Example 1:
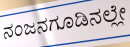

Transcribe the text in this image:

ನಂಜನಗೂಡಿನಲ್ಲೇ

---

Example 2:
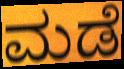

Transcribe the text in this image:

ಮಡೆ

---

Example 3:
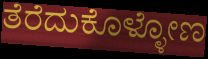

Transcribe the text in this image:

ತೆರೆದುಕೊಳ್ಳೋಣ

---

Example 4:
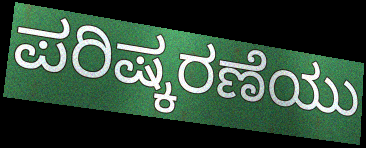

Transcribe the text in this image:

ಪರಿಷ್ಕರಣೆಯು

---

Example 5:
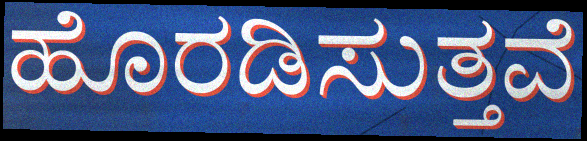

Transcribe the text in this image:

ಹೊರಡಿಸುತ್ತವೆ